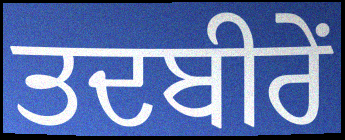
ਤਦਬੀਰੇਂ